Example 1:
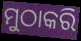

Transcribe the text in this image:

ମୁଠାକରି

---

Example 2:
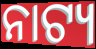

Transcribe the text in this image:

ନାଟ୍ୟ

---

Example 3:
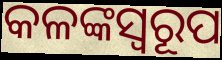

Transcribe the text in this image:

କଳଙ୍କସ୍ୱରୂପ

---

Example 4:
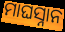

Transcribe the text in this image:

ମାଘସ୍ନାନ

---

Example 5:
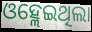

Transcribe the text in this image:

ଓହ୍ଲେଇଥିଲା